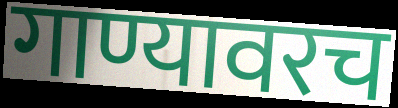
गाण्यावरच